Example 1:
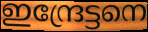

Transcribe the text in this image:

ഇന്ദ്രേട്ടനെ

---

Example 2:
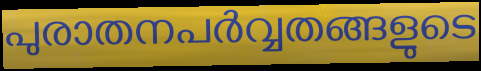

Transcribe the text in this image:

പുരാതനപർവ്വതങ്ങളുടെ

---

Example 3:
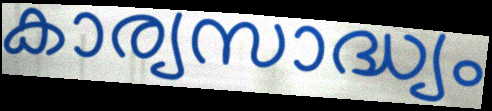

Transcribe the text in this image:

കാര്യസാദ്ധ്യം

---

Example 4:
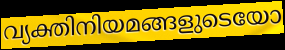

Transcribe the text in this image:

വ്യക്തിനിയമങ്ങളുടെയോ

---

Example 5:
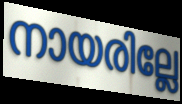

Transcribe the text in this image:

നായരില്ലേ